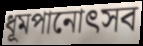
ধূমপানোৎসব